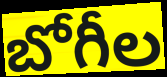
బోగీల